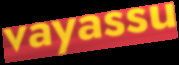
vayassu